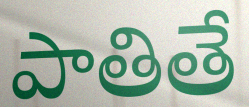
పాతితే